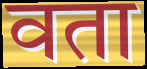
वता